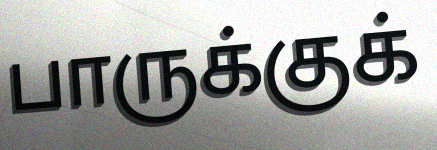
பாருக்குக்